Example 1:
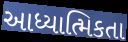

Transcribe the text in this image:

આધ્યાત્મિકતા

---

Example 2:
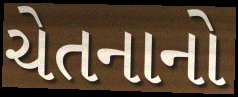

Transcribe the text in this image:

ચેતનાનો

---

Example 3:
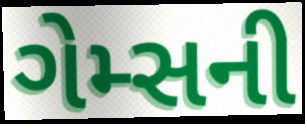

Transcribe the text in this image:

ગેમ્સની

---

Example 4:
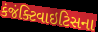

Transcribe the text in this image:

કંજંક્ટિવાઇટિસના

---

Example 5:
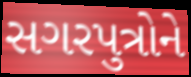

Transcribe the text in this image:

સગરપુત્રોને